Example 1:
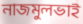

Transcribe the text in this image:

নাজমুলভাই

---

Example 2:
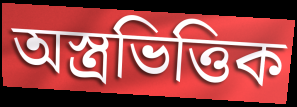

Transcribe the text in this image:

অস্ত্রভিত্তিক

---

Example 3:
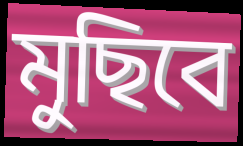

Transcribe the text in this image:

মুছিবে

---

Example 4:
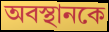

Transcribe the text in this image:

অবস্থানকে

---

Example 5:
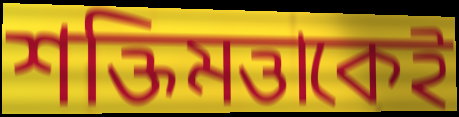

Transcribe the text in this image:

শক্তিমত্তাকেই